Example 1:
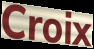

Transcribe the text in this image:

Croix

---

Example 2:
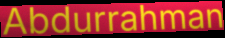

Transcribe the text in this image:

Abdurrahman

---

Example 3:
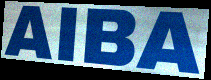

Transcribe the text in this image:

AIBA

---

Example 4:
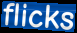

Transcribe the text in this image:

flicks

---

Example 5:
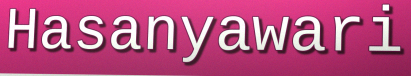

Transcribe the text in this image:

Hasanyawari